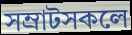
সম্ৰাটসকলে